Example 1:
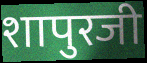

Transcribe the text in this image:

शापुरजी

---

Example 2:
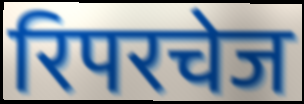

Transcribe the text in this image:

रिपरचेज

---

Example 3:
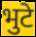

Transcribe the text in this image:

भुटे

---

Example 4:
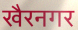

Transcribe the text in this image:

खैरनगर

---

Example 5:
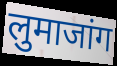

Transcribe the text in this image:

लुमाजांग